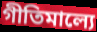
গীতিমাল্যে